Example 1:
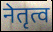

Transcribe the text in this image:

नेतृत्व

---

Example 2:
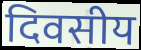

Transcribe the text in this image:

दिवसीय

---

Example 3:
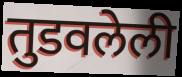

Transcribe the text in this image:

तुडवलेली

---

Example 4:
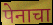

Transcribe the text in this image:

पेनाचा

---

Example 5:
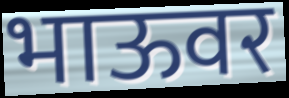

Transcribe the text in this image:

भाऊवर